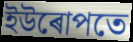
ইউৰোপতে